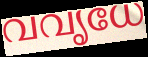
വവൃധേ